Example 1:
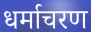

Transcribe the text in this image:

धर्माचरण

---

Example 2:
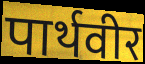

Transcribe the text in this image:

पार्थवीर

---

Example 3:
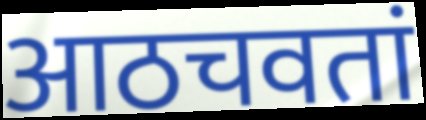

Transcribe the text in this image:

आठचवतां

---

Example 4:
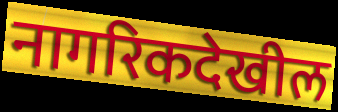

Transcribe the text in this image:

नागरिकदेखील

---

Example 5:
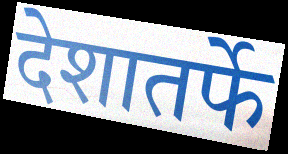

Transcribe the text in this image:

देशातर्फे